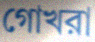
গোখরা